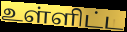
உள்ளிட்ட